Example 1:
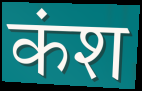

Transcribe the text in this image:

कंश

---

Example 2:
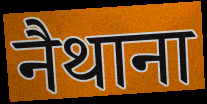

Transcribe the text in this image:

नैथाना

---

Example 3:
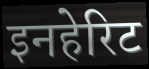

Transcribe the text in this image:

इनहेरिट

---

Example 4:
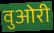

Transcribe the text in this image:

वुओरी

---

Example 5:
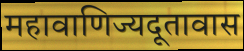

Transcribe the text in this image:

महावाणिज्यदूतावास